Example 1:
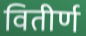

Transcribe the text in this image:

वितीर्ण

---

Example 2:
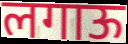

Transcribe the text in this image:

लगाऊ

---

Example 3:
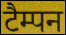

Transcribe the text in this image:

टैम्पन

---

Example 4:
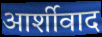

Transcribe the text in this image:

आर्शीवाद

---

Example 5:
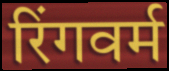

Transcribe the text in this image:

रिंगवर्म